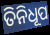
ତିନିଧୂପ